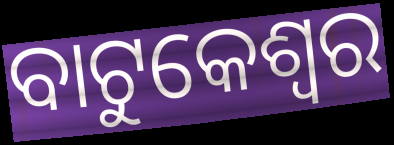
ବାଟୁକେଶ୍ୱର